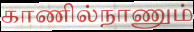
காணில்நாணும்